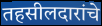
तहसीलदारांचे